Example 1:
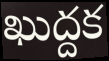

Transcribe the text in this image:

ఖుద్దక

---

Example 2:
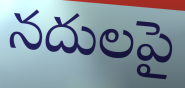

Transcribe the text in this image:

నదులపై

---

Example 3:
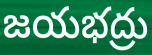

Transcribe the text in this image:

జయభద్రు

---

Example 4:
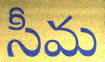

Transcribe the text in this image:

సీమ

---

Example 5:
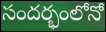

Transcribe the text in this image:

సందర్భంలోనో